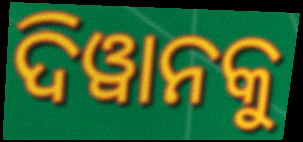
ଦିୱାନକୁ